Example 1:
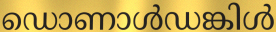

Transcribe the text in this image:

ഡൊണാൾഡങ്കിൾ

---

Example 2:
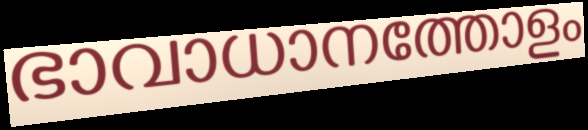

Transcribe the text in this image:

ഭാവാധാനത്തോളം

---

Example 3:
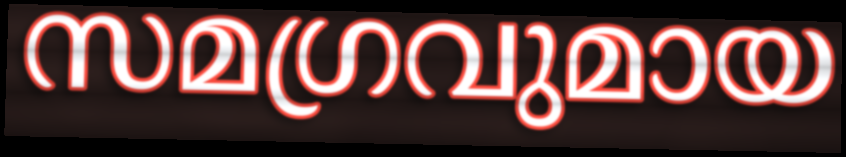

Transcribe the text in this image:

സമഗ്രവുമായ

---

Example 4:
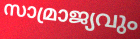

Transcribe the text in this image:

സാമ്രാജ്യവും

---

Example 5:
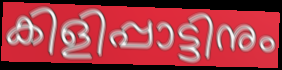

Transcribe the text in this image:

കിളിപ്പാട്ടിനും